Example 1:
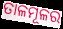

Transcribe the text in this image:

ତାଳମୂଳର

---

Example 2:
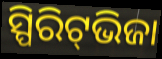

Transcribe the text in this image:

ସ୍ପିରିଟ୍‌ଭିଜା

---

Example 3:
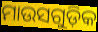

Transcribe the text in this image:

ମାଉସଗୁଡ଼ିକ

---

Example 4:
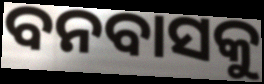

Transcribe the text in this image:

ବନବାସକୁ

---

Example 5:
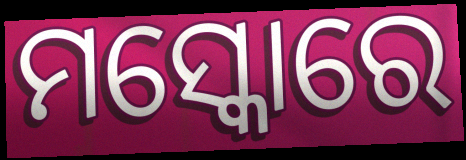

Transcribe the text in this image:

ମସ୍କୋରେ